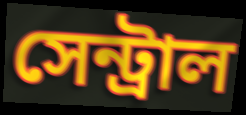
সেন্ট্রাল